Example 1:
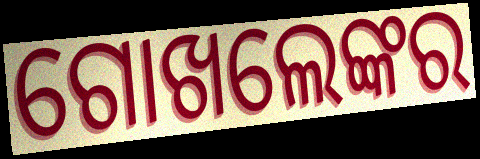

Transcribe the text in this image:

ଗୋଖଲେଙ୍କର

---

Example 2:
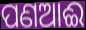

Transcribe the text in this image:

ପଣଆଈ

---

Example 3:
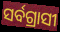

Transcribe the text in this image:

ସର୍ବଗ୍ରାସୀ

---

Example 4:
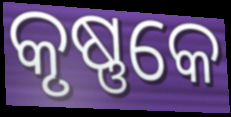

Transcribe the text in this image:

କୃଷ୍ଣକେ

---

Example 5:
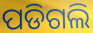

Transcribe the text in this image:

ପଡିଗଲି